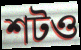
শটও